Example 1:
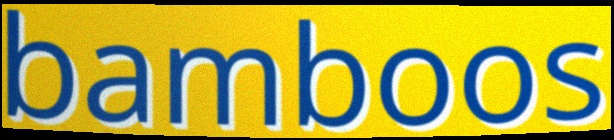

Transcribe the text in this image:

bamboos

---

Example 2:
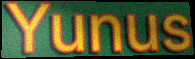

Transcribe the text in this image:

Yunus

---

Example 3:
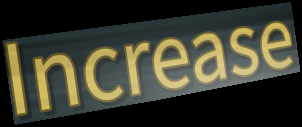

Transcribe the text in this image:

Increase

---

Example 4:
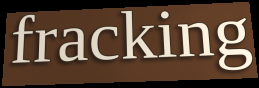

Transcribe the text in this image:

fracking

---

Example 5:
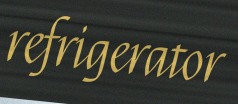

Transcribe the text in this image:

refrigerator